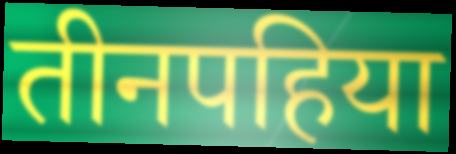
तीनपहिया